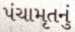
પંચામૃતનું